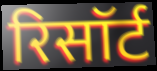
रिसॉर्ट